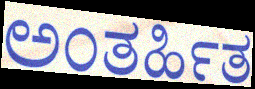
ಅಂತರ್ಹಿತ